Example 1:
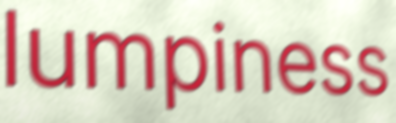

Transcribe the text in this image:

lumpiness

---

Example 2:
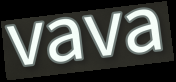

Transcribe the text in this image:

vava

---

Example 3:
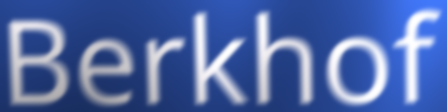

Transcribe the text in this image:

Berkhof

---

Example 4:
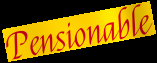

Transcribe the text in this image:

Pensionable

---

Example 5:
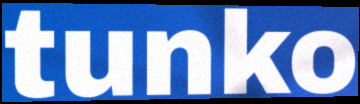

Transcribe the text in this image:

tunko